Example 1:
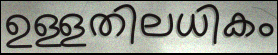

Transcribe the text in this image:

ഉള്ളതിലധികം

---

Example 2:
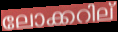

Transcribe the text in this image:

ലോക്കറില്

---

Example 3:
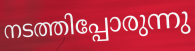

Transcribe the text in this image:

നടത്തിപ്പോരുന്നു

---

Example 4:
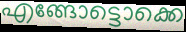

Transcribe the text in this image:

എങ്ങോട്ടൊക്കെ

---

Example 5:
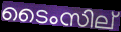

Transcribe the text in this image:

ടൈംസില്